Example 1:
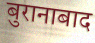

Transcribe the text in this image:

बुरानाबाद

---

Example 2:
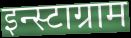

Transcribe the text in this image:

इन्स्टाग्राम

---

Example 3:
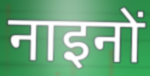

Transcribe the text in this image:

नाइनों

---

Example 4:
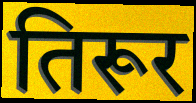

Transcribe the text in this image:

तिरूर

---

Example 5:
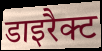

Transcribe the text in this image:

डाइरैक्ट